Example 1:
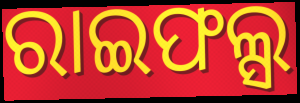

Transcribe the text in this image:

ରାଇଫଲ୍ସ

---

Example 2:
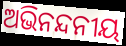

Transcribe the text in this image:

ଅଭିନନ୍ଦନୀୟ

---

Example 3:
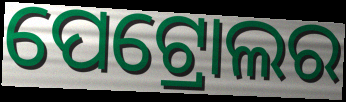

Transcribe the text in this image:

ପେଟ୍ରୋଲର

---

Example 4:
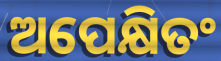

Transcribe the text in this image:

ଅପେକ୍ଷିତଂ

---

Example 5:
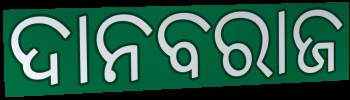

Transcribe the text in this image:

ଦାନବରାଜ